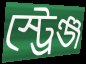
স্ট্রেঞ্জ